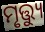
ମୃତ୍ତ୍ୟୁ